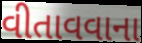
વીતાવવાના